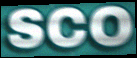
SCO